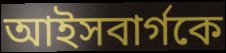
আইসবার্গকে